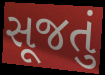
સૂજતું